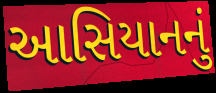
આસિયાનનું